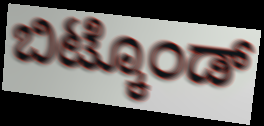
ಬಿಟ್ಕೊಂಡ್